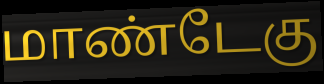
மாண்டேகு